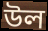
উল